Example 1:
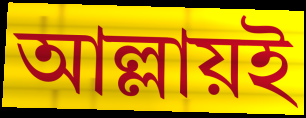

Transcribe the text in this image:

আল্লায়ই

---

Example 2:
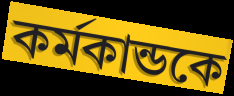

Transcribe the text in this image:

কর্মকান্ডকে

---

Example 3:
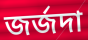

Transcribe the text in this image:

জর্জদা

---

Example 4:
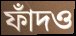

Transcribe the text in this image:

ফাঁদও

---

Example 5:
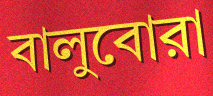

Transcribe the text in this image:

বালুবোরা